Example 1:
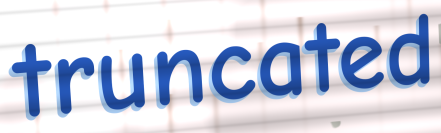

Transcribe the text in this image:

truncated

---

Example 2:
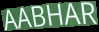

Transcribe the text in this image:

AABHAR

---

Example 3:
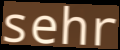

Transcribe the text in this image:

sehr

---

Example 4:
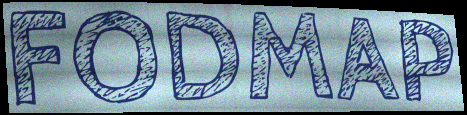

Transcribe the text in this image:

FODMAP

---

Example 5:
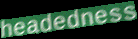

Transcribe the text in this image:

headedness